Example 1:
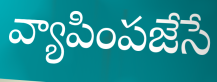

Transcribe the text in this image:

వ్యాపింపజేసే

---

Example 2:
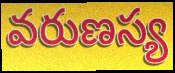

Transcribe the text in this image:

వరుణస్య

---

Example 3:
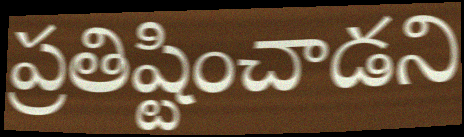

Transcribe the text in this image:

ప్రతిష్టించాడని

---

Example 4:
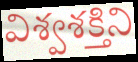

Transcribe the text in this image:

విశ్వశక్తిని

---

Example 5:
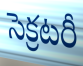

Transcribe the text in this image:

సెక్రటరీ